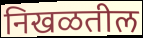
निखळतील